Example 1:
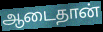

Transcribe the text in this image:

ஆடைதான்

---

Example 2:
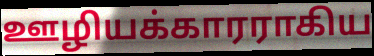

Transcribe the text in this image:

ஊழியக்காரராகிய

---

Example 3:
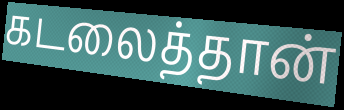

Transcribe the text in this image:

கடலைத்தான்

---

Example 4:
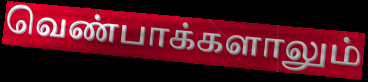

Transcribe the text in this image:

வெண்பாக்களாலும்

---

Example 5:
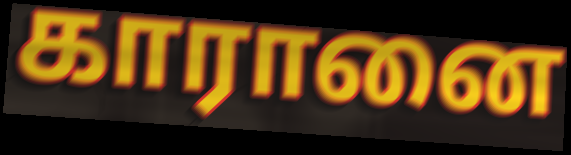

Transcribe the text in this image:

காரானை